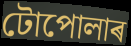
টোপোলাৰ